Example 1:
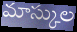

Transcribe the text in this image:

మాస్కుల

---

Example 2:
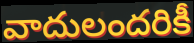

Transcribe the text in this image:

వాదులందరికీ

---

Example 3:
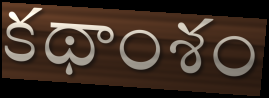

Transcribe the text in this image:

కథాంశం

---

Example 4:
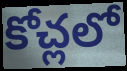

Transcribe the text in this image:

కోచ్లలో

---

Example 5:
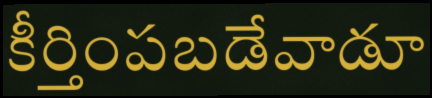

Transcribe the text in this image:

కీర్తింపబడేవాడూ